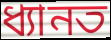
ধ্যানত